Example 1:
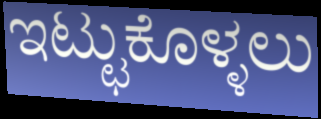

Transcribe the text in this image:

ಇಟ್ಟುಕೊಳ್ಳಲು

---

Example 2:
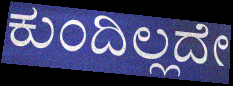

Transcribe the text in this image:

ಕುಂದಿಲ್ಲದೇ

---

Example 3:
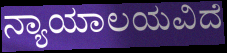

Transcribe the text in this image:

ನ್ಯಾಯಾಲಯವಿದೆ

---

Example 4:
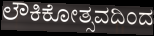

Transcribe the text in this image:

ಲೌಕಿಕೋತ್ಸವದಿಂದ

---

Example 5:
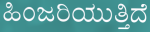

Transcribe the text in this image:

ಹಿಂಜರಿಯುತ್ತಿದೆ